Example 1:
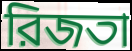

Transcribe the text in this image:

রিজতা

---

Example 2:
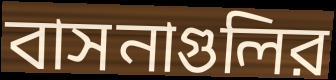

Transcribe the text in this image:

বাসনাগুলির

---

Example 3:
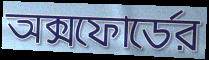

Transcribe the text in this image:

অক্সফোর্ডের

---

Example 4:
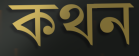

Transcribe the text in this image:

কথন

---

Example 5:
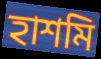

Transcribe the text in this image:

হাশমি